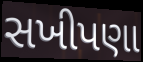
સખીપણા